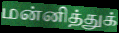
மன்னித்துக்